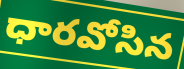
ధారవోసిన